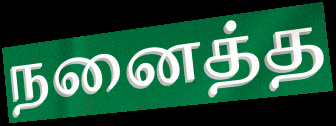
நனைத்த